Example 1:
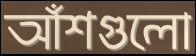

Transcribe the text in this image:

আঁশগুলো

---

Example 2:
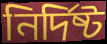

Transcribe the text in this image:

নির্দিষ্ট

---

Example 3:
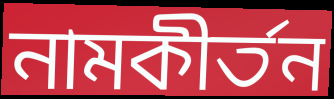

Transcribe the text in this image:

নামকীর্তন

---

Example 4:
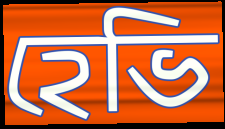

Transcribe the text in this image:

হেভি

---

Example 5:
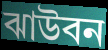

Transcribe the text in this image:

ঝাউবন